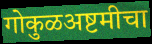
गोकुळअष्टमीचा